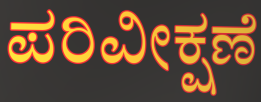
ಪರಿವೀಕ್ಷಣೆ